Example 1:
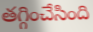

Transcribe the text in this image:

తగ్గించేసింది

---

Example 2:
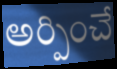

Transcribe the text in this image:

అర్పించే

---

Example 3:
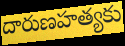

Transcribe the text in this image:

దారుణహత్యకు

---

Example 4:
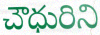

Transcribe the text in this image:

చౌధురిని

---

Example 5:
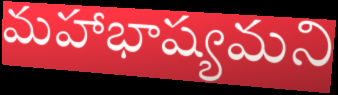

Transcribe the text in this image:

మహాభాష్యమని